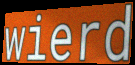
wierd